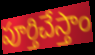
పూర్తిచేస్తాం